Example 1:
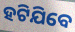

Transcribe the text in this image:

ହଟିଯିବେ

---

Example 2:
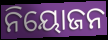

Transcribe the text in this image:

ନିୟୋଜନ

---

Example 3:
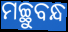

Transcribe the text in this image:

ମଚ୍ଛୁବନ୍ଧ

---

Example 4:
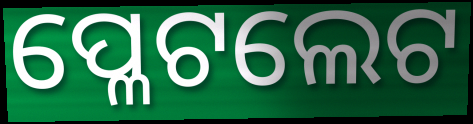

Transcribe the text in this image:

ପ୍ଳେଟଲେଟ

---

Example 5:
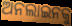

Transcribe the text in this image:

ଅନଲାଇନକୁ